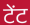
टेंट